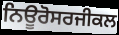
ਨਿਊਰੋਸਰਜੀਕਲ